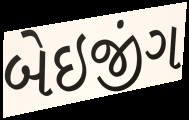
બેઇજીંગ